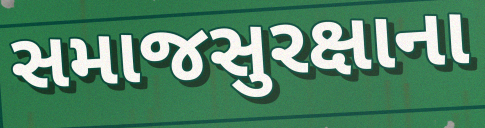
સમાજસુરક્ષાના